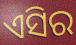
ଏସିର